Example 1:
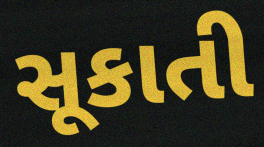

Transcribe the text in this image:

સૂકાતી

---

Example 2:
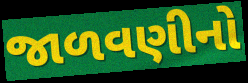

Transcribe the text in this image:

જાળવણીનો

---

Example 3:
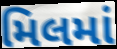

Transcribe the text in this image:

મિલમાં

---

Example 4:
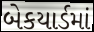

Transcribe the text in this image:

બેકયાર્ડમાં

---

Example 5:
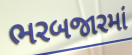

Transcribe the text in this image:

ભરબજારમાં